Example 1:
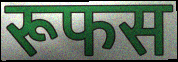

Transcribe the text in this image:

रूफस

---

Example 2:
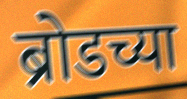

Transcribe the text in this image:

ब्रोडच्या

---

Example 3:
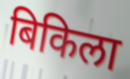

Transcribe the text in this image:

बिकिला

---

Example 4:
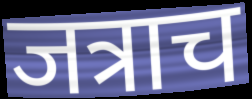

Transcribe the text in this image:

जत्राच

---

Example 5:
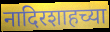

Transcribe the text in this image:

नादिरशाहच्या